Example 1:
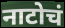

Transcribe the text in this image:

नाटोचं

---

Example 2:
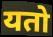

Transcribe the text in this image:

यतो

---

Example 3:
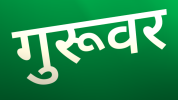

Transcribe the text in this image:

गुरूवर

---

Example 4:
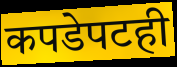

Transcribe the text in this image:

कपडेपटही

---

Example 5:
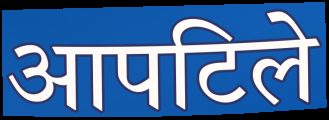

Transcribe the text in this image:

आपटिले